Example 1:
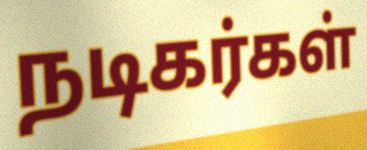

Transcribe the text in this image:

நடிகர்கள்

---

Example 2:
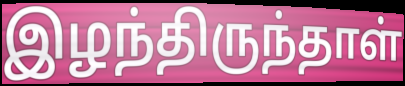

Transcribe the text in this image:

இழந்திருந்தாள்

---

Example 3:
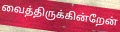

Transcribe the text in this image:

வைத்திருக்கின்றேன்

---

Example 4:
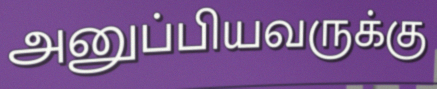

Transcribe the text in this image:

அனுப்பியவருக்கு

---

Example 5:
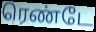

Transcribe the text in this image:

ரெண்டே